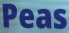
Peas